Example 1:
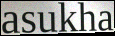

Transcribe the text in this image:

asukha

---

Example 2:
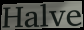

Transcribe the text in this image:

Halve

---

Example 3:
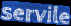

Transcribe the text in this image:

servile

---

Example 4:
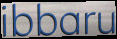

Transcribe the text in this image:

ibbaru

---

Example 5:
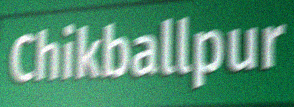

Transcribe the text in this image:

Chikballpur